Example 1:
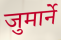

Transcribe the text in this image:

जुमार्ने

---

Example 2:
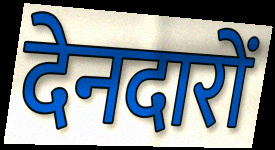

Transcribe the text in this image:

देनदारों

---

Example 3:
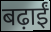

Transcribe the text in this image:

बढ़ाईं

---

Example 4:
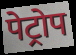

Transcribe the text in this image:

पेट्रोप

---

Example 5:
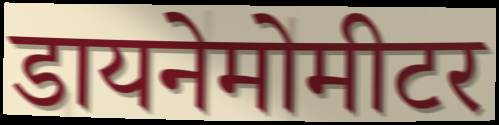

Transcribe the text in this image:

डायनेमोमीटर